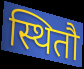
स्थितौ